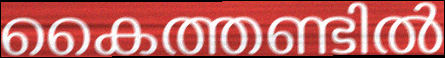
കൈത്തണ്ടിൽ